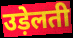
उड़ेलती